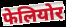
फेलियोर